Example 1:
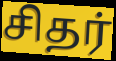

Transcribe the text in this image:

சிதர்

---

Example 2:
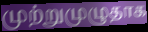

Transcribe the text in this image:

முற்றுமுழுதாக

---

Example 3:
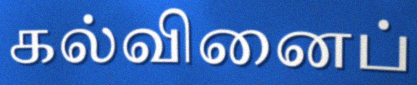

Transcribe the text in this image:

கல்வினைப்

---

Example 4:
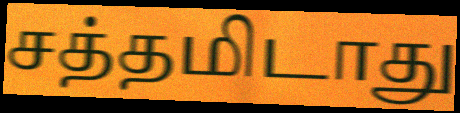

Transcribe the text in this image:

சத்தமிடாது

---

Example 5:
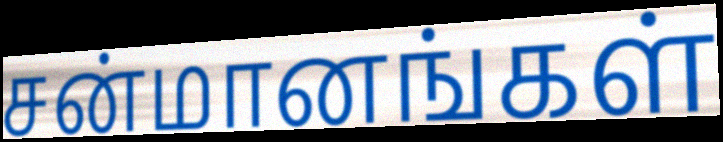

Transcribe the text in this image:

சன்மானங்கள்